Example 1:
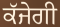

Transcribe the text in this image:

ਕੱਜੇਗੀ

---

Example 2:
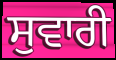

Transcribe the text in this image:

ਸੁਵਾਰੀ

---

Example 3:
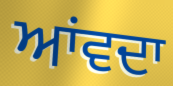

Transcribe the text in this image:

ਆਂਵਦਾ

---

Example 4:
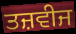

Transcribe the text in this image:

ਤਜ਼ਵੀਜ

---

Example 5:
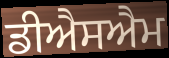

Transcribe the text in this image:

ਡੀਐਸਐਮ